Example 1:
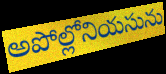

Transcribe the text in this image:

అపోల్లోనియసును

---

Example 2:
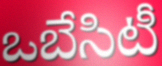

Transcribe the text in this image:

ఒబేసిటీ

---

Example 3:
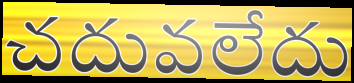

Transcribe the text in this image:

చదువలేదు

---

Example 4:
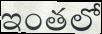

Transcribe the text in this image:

ఇంతలో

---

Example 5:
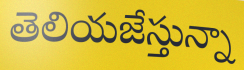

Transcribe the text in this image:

తెలియజేస్తున్నా